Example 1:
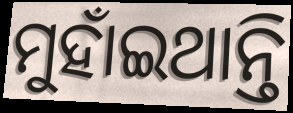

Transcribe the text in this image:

ମୁହାଁଇଥାନ୍ତି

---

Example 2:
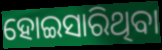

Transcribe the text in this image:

ହୋଇସାରିଥିବା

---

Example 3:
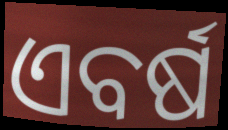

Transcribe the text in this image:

ଏବର୍ଷ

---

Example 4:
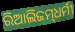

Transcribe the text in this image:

ରିଆଲିଜମ୍‌ଧର୍ମୀ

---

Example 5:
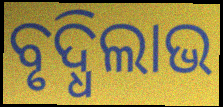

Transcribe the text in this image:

ବୃଦ୍ଧିଲାଭ